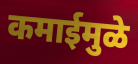
कमाईमुळे